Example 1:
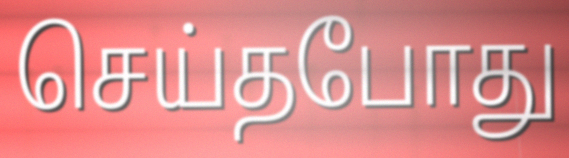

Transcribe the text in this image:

செய்தபோது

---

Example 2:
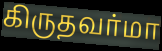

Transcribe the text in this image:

கிருதவர்மா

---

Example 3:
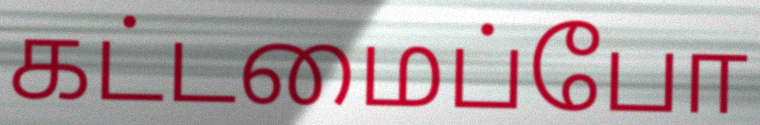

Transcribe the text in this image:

கட்டமைப்போ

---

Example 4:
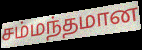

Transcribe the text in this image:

சம்மந்தமான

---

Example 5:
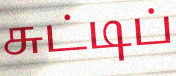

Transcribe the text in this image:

சுட்டிப்